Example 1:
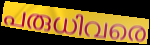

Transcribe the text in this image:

പരുധിവരെ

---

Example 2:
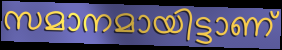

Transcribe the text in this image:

സമാനമായിട്ടാണ്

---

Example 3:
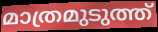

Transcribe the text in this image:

മാത്രമുടുത്ത്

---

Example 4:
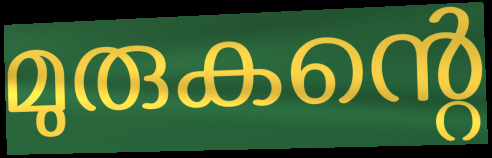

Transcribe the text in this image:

മുരുകന്റെ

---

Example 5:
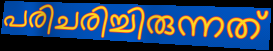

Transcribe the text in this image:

പരിചരിച്ചിരുന്നത്